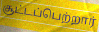
சூட்டப்பெற்றார்